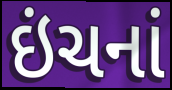
ઇંચનાં